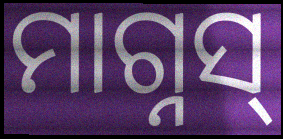
ମାଗ୍ନସ୍